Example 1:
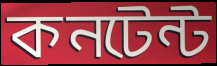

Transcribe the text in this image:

কনটেন্ট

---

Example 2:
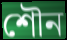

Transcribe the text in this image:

শৌন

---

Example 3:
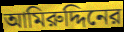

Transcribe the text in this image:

আমিরুদ্দিনের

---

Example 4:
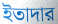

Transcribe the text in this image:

ইতাদার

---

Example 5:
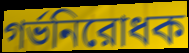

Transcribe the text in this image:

গর্ভনিরোধক